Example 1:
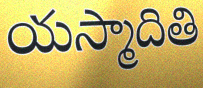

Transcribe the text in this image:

యస్మాదితి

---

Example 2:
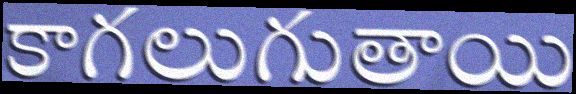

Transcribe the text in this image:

కాగలుగుతాయి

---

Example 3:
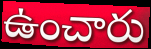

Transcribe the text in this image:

ఉంచారు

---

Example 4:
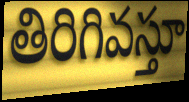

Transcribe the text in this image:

తిరిగివస్తూ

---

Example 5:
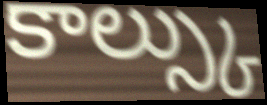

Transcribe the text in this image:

కాల్స్కు